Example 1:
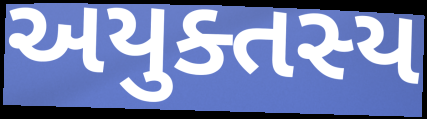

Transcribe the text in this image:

અયુક્તસ્ય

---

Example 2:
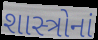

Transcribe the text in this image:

શાસ્ત્રોનાં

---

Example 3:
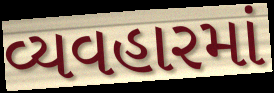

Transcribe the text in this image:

વ્યવહારમાં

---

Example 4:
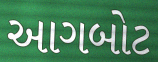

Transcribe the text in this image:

આગબોટ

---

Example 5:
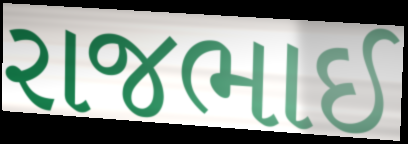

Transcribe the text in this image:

રાજભાઈ